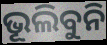
ଭୂଲିବୁନି